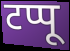
टप्पू